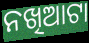
ନଖିଆଟା